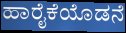
ಹಾರೈಕೆಯೊಡನೆ